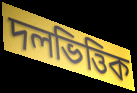
দলভিত্তিক